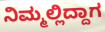
ನಿಮ್ಮಲ್ಲಿದ್ದಾಗ